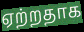
ஏற்றதாக